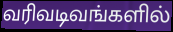
வரிவடிவங்களில்